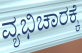
ವ್ಯಭಿಚಾರಕ್ಕೆ